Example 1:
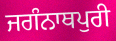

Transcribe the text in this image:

ਜਗੰਨਾਥਪੁਰੀ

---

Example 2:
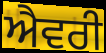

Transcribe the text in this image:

ਐਵਰੀ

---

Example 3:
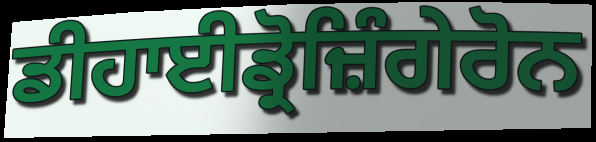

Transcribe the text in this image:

ਡੀਹਾਈਡ੍ਰੋਜ਼ਿੰਗੇਰੋਨ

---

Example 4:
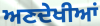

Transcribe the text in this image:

ਅਣਦੇਖੀਆਂ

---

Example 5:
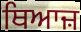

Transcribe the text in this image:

ਥਿਆਜ਼